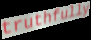
truthfully